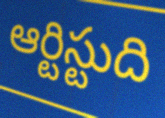
ఆర్టిస్టుది